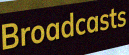
Broadcasts